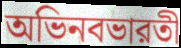
অভিনবভারতী